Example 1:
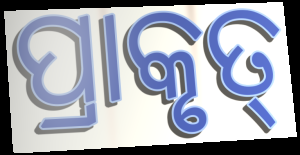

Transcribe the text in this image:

ପ୍ରାକୃତ୍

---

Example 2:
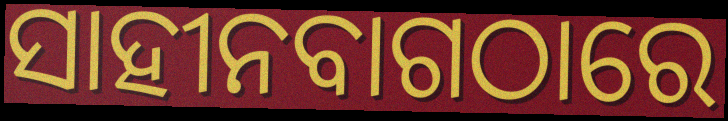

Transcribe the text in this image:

ସାହୀନବାଗଠାରେ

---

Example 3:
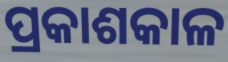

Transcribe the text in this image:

ପ୍ରକାଶକାଳ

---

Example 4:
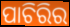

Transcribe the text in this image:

ପାଚିରିର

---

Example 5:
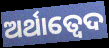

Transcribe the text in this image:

ଅର୍ଥାତ୍ବେଦ